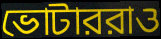
ভোটাররাও